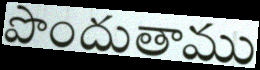
పొందుతాము